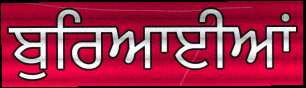
ਬੁਰਿਆਈਆਂ